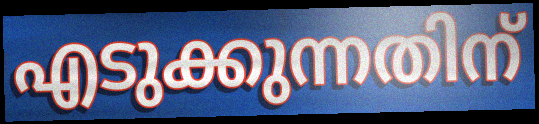
എടുക്കുന്നതിന്